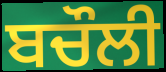
ਬਚੌਲੀ